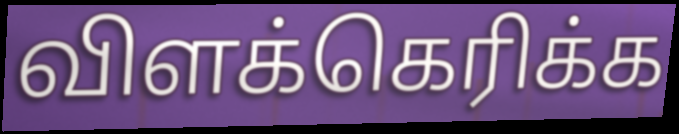
விளக்கெரிக்க